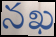
నఖ